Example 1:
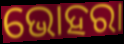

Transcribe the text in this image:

ଭୋହରା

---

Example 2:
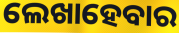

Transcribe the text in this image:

ଲେଖାହେବାର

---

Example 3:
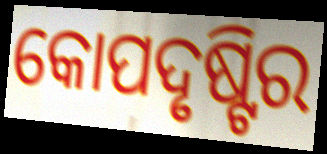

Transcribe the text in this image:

କୋପଦୃଷ୍ଟିର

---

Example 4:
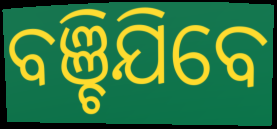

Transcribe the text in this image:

ବଞ୍ଚିଯିବେ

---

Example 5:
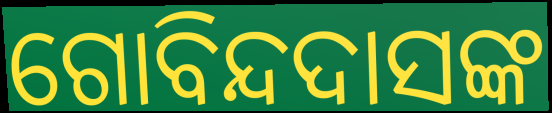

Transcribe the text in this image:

ଗୋବିନ୍ଦଦାସଙ୍କ